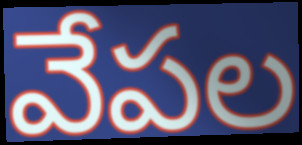
వేపల